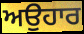
ਅਉਹਾਰ